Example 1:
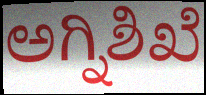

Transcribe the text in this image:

ಅಗ್ನಿಶಿಖೆ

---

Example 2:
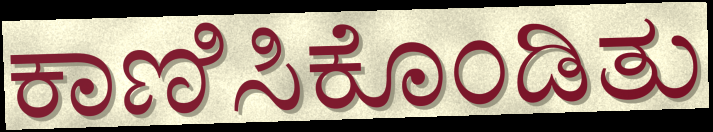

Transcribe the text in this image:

ಕಾಣಿಸಿಕೊಂಡಿತು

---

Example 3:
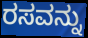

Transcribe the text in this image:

ರಸವನ್ನು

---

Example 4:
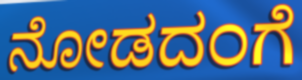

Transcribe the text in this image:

ನೋಡದಂಗೆ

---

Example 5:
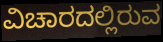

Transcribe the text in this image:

ವಿಚಾರದಲ್ಲಿರುವ